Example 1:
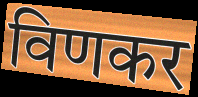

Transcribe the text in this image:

विणकर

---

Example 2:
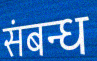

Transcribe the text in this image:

संबन्ध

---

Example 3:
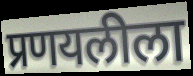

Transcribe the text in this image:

प्रणयलीला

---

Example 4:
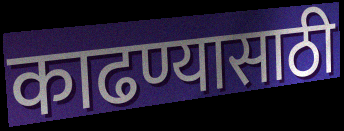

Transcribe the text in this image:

काढण्यासाठी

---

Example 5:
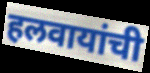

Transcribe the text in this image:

हलवायांची